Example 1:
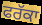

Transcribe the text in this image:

ਫਰੱਕਾ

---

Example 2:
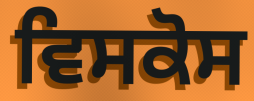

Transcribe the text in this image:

ਵਿਸਕੋਸ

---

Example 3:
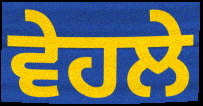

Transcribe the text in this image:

ਵੇਹਲੇ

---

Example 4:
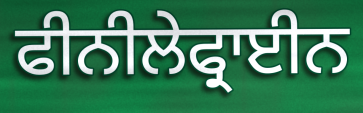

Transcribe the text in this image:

ਫੀਨੀਲੇਫ੍ਰਾਈਨ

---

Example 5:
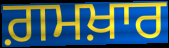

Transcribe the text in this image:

ਗ਼ਮਖ਼ਾਰ